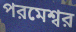
পরমেশ্বর